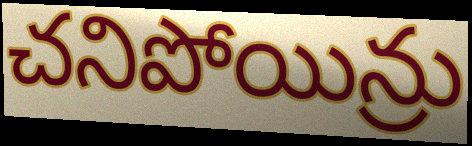
చనిపోయిన్రు